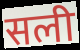
सली